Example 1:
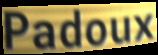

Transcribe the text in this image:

Padoux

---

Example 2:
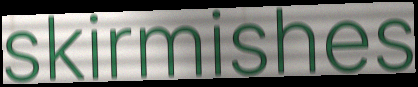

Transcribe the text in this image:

skirmishes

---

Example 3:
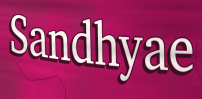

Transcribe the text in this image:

Sandhyae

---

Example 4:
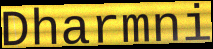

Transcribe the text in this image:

Dharmni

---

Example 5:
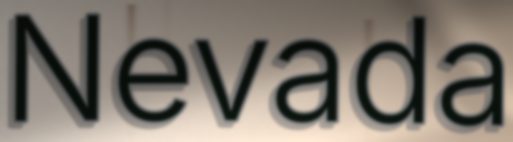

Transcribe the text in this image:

Nevada